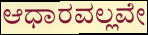
ಆಧಾರವಲ್ಲವೇ